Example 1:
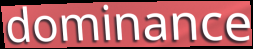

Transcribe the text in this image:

dominance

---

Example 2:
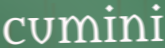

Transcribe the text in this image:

cumini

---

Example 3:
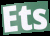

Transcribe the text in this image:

Ets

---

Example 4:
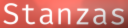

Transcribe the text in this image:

Stanzas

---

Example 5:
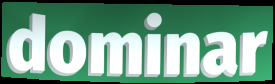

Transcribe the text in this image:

dominar